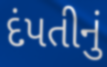
દંપતીનું